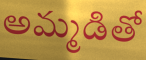
అమ్మడితో